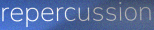
repercussion